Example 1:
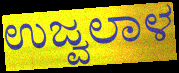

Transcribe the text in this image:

ಉಜ್ವಲಾಳ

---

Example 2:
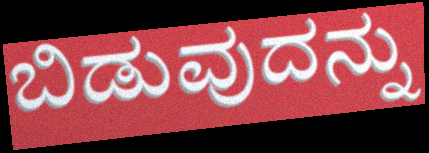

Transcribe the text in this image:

ಬಿಡುವುದನ್ನು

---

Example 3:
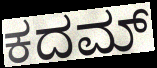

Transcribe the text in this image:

ಕದಮ್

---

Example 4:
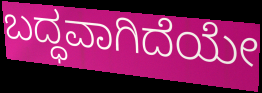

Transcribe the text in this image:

ಬದ್ಧವಾಗಿದೆಯೇ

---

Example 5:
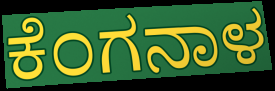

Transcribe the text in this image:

ಕೆಂಗನಾಳ